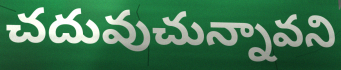
చదువుచున్నావని